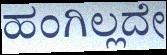
ಹಂಗಿಲ್ಲದೇ